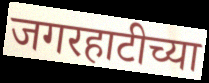
जगरहाटीच्या